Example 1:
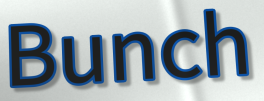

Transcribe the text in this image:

Bunch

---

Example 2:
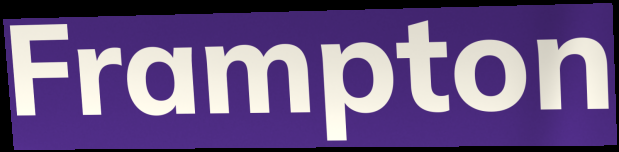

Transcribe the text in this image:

Frampton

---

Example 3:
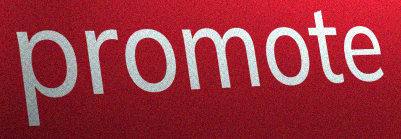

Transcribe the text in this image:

promote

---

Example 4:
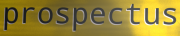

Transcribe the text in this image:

prospectus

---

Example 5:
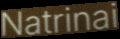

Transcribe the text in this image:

Natrinai